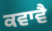
ਕਵਾਵੈ